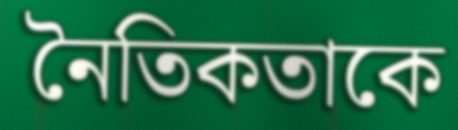
নৈতিকতাকে